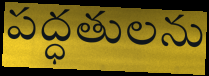
పద్ధతులను